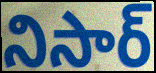
నిసార్